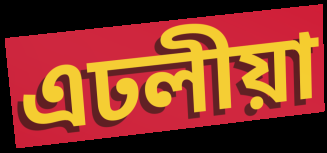
এঢলীয়া